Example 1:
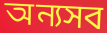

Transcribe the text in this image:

অন্যসব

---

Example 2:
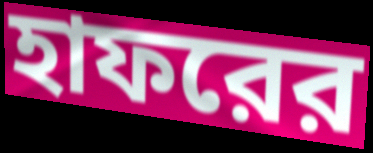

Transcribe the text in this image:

হাফরের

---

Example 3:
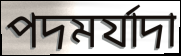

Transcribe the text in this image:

পদমর্যাদা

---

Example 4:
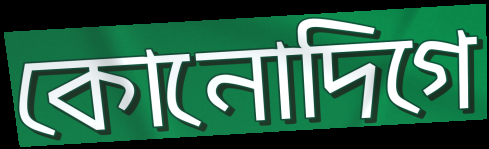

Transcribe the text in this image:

কোনোদিগে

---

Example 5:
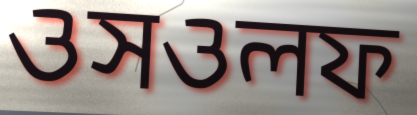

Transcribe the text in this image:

ওসওলফ